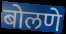
बोलणे